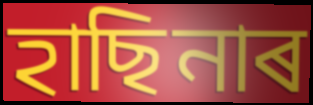
হাছিনাৰ